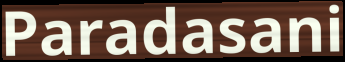
Paradasani